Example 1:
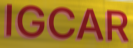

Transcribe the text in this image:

IGCAR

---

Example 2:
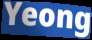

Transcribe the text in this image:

Yeong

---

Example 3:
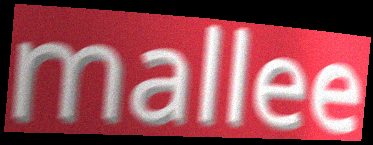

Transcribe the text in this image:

mallee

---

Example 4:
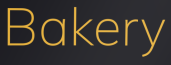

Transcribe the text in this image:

Bakery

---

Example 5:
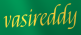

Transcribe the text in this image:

vasireddy